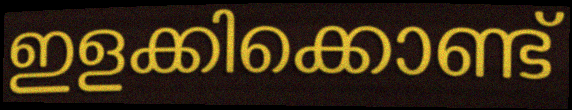
ഇളക്കിക്കൊണ്ട്